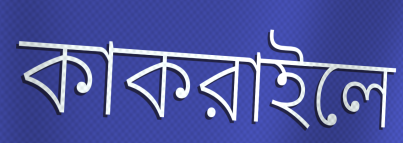
কাকরাইলে